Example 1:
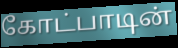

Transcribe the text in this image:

கோட்பாடின்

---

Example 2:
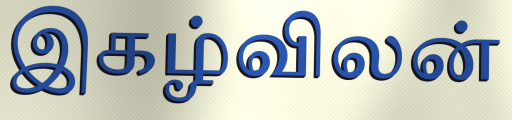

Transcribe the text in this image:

இகழ்விலன்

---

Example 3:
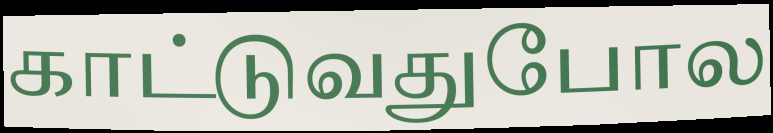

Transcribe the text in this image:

காட்டுவதுபோல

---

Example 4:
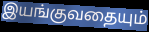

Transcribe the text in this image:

இயங்குவதையும்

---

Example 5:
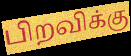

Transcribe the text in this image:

பிறவிக்கு